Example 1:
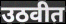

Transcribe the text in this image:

उठवीत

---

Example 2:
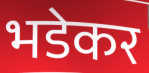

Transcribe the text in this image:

भडेकर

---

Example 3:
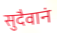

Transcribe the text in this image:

सुदैवानं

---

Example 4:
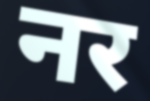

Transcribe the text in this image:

नर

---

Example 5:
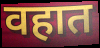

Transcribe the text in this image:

वहात